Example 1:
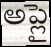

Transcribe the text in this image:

అప్లై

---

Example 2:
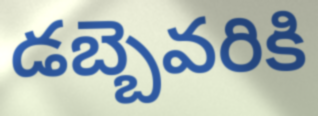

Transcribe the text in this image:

డబ్బెవరికి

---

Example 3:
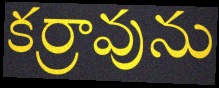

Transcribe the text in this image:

కర్రావును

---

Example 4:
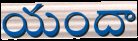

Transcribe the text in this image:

యందా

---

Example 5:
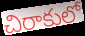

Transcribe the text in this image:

చిరాకులో